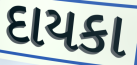
દાયકા